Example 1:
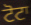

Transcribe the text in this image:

ਟੋਟਾ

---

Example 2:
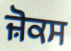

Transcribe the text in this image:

ਜ਼ੋਕਸ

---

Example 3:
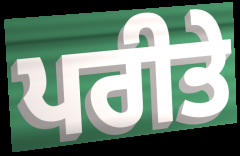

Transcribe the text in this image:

ਪਰੀਤੇ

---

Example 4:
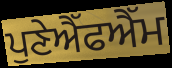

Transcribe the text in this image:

ਪੁਣੇਐੱਫਐੱਮ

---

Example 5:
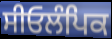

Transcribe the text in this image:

ਸੀਓਲੰਪਿਕ